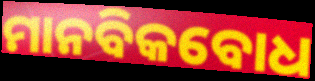
ମାନବିକବୋଧ